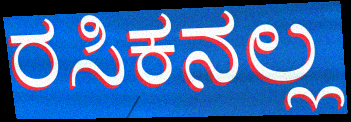
ರಸಿಕನಲ್ಲ